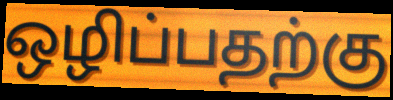
ஒழிப்பதற்கு